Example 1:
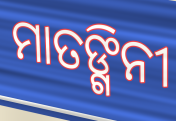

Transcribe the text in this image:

ମାତଙ୍ଗିନୀ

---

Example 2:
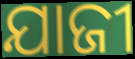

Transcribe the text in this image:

ଯାଜୀ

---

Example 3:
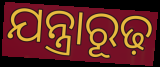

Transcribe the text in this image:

ଯନ୍ତ୍ରାରୂଢ଼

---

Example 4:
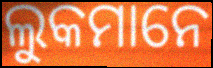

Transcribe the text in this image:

ଲୁକମାନେ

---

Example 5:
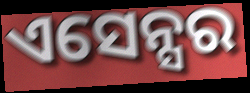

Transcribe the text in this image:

ଏସେନ୍ସର